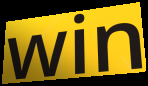
win